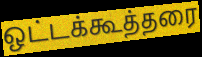
ஒட்டக்கூத்தரை